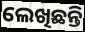
ଲେଖିଛନ୍ତି